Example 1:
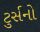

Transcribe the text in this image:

ટુર્સનો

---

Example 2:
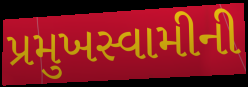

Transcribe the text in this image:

પ્રમુખસ્વામીની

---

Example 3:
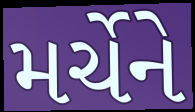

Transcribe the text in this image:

મર્ચેને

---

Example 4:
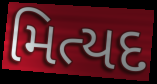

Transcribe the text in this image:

મિત્યદ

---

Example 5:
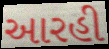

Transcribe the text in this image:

આરહી